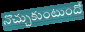
నొచ్చుకుంటుందో